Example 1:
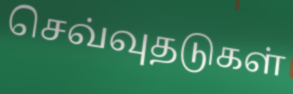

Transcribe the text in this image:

செவ்வுதடுகள்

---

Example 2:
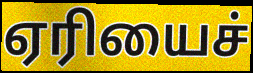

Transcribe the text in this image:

ஏரியைச்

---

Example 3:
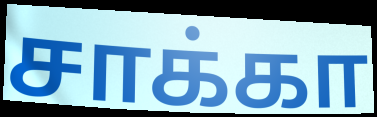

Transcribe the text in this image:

சாக்கா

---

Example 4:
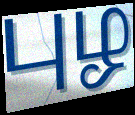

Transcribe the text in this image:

புழ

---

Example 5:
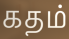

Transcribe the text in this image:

கதம்